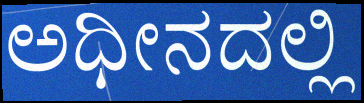
ಅಧೀನದಲ್ಲಿ